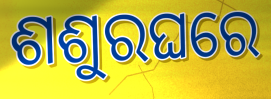
ଶଶୁରଘରେ